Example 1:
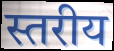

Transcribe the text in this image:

स्तरीय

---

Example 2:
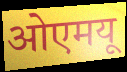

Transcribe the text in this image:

ओएमयू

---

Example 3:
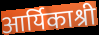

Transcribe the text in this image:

आर्यिकाश्री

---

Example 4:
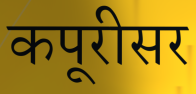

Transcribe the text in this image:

कपूरीसर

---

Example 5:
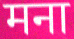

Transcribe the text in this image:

मना